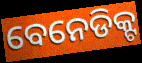
ବେନେଡିକ୍ଟ